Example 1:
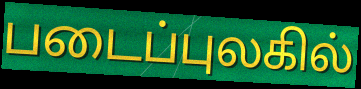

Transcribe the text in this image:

படைப்புலகில்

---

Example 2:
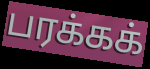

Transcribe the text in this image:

பரக்கக்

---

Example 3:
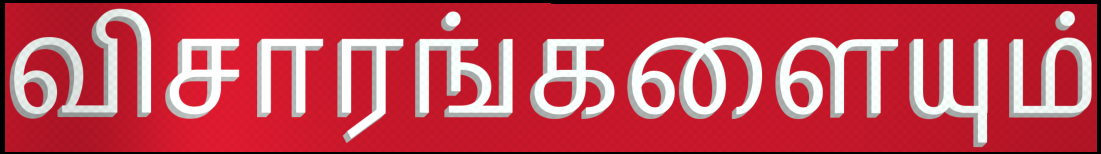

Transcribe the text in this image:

விசாரங்களையும்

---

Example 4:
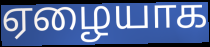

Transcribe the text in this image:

ஏழையாக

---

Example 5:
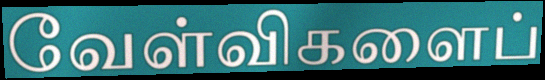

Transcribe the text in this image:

வேள்விகளைப்